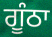
ਗੂੰਠਾ